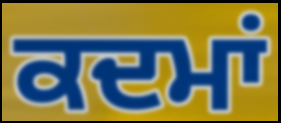
ਕਦਮਾਂ